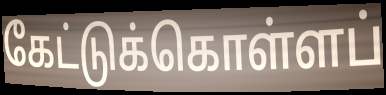
கேட்டுக்கொள்ளப்